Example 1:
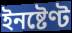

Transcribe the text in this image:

ইনষ্টেণ্ট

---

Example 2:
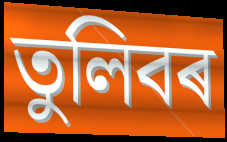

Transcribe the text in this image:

তুলিবৰ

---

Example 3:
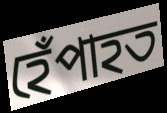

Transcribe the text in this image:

হেঁপাহত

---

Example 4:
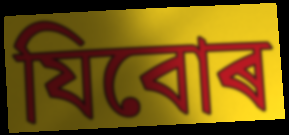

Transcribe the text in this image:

যিবোৰ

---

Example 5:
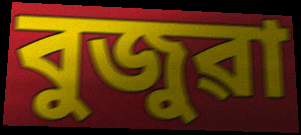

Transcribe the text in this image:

বুজুৱা